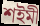
শইমী